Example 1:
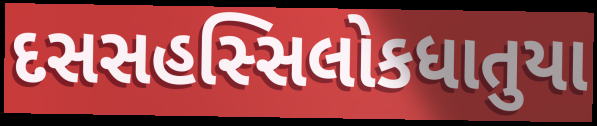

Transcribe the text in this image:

દસસહસ્સિલોકધાતુયા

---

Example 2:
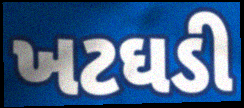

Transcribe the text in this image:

ખટઘડી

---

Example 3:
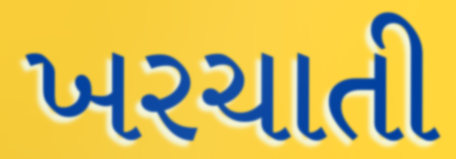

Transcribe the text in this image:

ખરચાતી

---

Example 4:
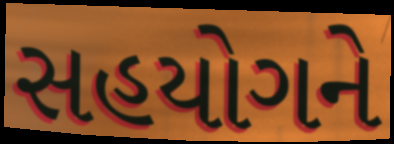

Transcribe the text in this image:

સહયોગને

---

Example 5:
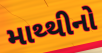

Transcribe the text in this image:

માથ્થીનો